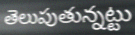
తెలుపుతున్నట్టు